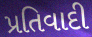
પ્રતિવાદી